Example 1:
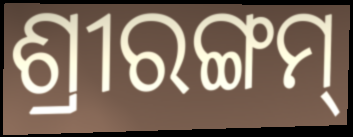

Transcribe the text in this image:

ଶ୍ରୀରଙ୍ଗମ୍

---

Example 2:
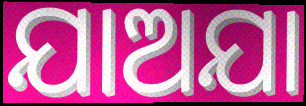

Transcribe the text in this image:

ଯାଅଯା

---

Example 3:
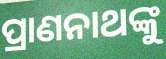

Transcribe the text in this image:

ପ୍ରାଣନାଥଙ୍କୁ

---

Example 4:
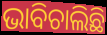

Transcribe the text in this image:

ଭାବିଚାଲିଛି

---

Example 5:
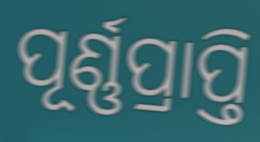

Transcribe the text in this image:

ପୂର୍ଣ୍ଣପ୍ରାପ୍ତି